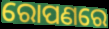
ରୋପଣରେ